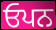
ਓਪਨ